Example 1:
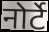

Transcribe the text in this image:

नोर्टे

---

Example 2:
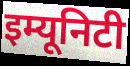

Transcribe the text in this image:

इम्यूनिटी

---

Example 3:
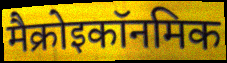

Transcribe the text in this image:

मैक्रोइकॉनमिक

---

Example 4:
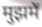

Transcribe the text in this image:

मुझमें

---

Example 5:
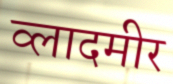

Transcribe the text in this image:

व्लादमीर